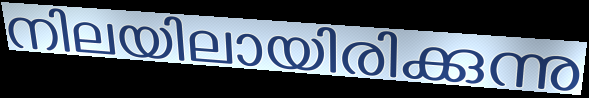
നിലയിലായിരിക്കുന്നു